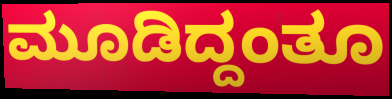
ಮೂಡಿದ್ದಂತೂ